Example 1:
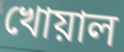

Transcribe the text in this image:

খোয়াল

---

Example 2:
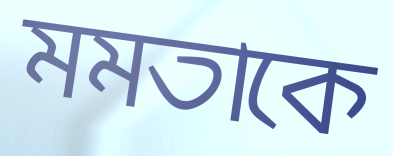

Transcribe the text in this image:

মমতাকে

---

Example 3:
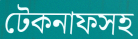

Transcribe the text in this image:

টেকনাফসহ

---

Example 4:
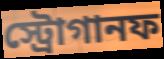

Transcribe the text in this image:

স্ট্রোগানফ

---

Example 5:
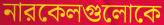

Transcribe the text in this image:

নারকেলগুলোকে